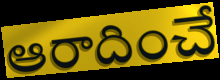
ఆరాదించే